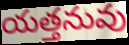
యత్తనువు